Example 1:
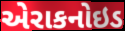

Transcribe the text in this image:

એરાકનોઇડ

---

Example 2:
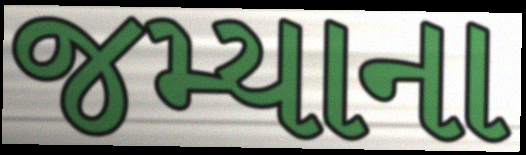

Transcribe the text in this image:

જમ્યાના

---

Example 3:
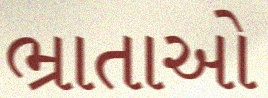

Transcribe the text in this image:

ભ્રાતાઓ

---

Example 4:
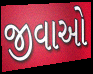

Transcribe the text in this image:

જીવાઓ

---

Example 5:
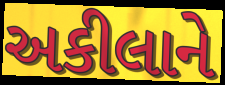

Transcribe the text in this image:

અકીલાને